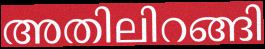
അതിലിറങ്ങി